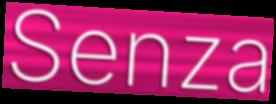
Senza